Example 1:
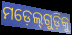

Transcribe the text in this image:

ମଡ଼େଲ୍‌ଗୁଡ଼ିକୁ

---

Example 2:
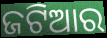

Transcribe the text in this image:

ଜଟିଆର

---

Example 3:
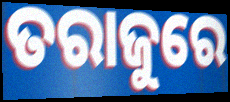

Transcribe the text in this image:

ତରାଜୁରେ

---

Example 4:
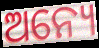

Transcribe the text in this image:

ଅନ୍ୟେ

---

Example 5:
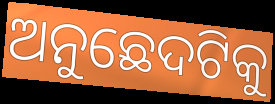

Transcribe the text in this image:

ଅନୁଛେଦଟିକୁ